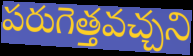
పరుగెత్తవచ్చని